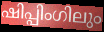
ഷിപ്പിംഗിലും